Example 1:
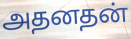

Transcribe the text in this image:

அதனதன்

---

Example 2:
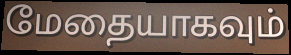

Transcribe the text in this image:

மேதையாகவும்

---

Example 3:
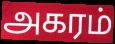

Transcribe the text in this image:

அகரம்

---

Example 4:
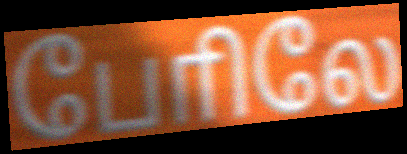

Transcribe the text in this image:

பேரிலே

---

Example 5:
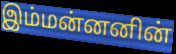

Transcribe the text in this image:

இம்மன்னனின்